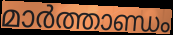
മാർത്താണ്ഡം